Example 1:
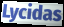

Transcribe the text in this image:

Lycidas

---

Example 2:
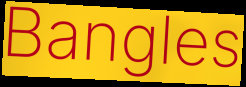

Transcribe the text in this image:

Bangles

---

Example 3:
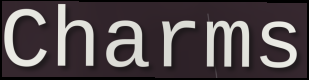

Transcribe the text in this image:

Charms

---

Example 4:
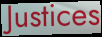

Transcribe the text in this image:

Justices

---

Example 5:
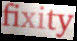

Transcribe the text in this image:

fixity